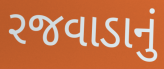
રજવાડાનું